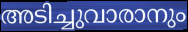
അടിച്ചുവാരാനും